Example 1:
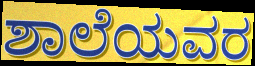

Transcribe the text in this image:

ಶಾಲೆಯವರ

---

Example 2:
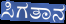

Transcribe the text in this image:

ಸಿಗತಾನ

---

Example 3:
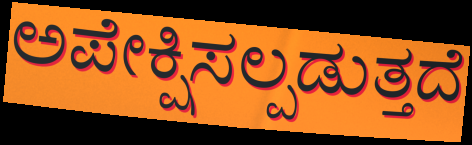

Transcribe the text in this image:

ಅಪೇಕ್ಷಿಸಲ್ಪಡುತ್ತದೆ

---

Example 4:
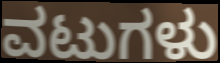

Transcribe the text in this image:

ವಟುಗಳು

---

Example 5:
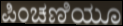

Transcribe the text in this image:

ಪಿಂಚಣಿಯೂ